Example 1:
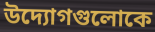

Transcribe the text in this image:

উদ্যোগগুলোকে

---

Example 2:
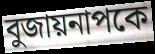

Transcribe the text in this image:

বুজায়নাপকে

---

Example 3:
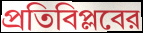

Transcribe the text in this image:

প্রতিবিপ্লবের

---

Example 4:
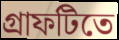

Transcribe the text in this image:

গ্রাফটিতে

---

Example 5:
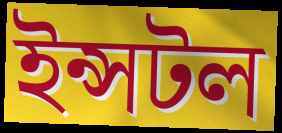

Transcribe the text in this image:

ইন্সটল